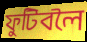
ফুটিবলৈ